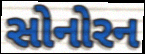
સોનોરન